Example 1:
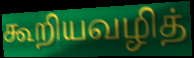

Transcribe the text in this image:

கூறியவழித்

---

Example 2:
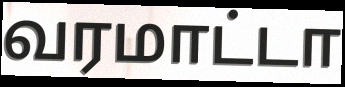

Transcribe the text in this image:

வரமாட்டா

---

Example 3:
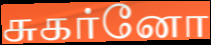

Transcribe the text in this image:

சுகர்னோ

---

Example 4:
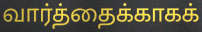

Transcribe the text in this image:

வார்த்தைக்காகக்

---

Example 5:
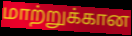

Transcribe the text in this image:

மாற்றுக்கான